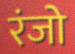
रंजो